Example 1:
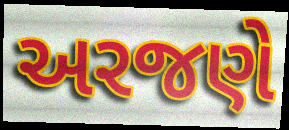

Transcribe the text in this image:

અરજણે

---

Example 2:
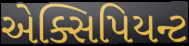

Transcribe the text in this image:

એક્સિપિયન્ટ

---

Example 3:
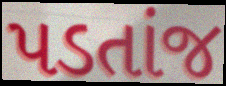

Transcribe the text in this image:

પડતાંજ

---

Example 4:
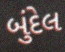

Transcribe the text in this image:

બુંદેલ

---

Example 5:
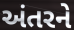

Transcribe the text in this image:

અંતરને